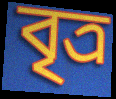
বৃত্ৰ